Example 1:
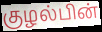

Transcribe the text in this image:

குழல்பின்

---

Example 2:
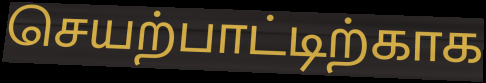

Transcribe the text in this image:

செயற்பாட்டிற்காக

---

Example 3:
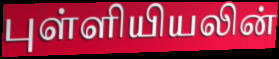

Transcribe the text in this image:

புள்ளியியலின்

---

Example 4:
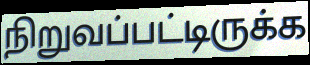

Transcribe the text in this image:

நிறுவப்பட்டிருக்க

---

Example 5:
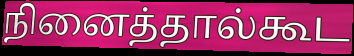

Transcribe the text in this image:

நினைத்தால்கூட